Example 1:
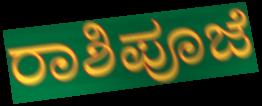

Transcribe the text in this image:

ರಾಶಿಪೂಜೆ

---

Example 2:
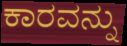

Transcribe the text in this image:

ಕಾರವನ್ನು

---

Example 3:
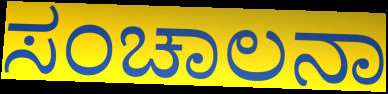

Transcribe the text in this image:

ಸಂಚಾಲನಾ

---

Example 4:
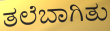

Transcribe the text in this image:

ತಲೆಬಾಗಿತು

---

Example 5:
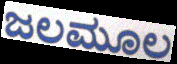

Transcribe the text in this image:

ಜಲಮೂಲ